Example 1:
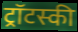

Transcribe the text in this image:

ट्रॉटस्की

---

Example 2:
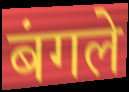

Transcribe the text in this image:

बंगले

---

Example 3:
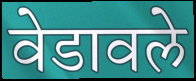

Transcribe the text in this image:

वेडावले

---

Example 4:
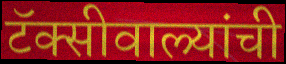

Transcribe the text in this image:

टॅक्सीवाल्यांची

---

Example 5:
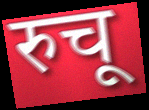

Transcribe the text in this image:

रुचू